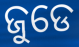
ଜୁଡେ